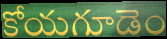
కోయగూడెం